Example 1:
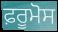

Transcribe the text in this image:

ਫ਼ਰੂਮੋਸ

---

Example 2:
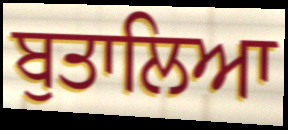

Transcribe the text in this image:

ਬੁਤਾਲਿਆ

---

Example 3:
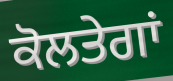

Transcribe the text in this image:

ਕੋਲਤੇਗਾਂ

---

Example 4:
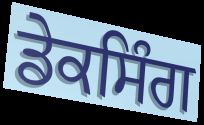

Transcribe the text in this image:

ਡੇਕਸਿੰਗ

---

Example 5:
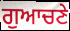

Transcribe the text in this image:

ਗੁਆਚਣੇ